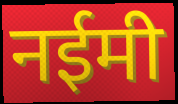
नईमी